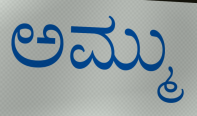
ಅಮ್ಮು